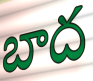
బాద